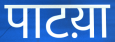
पाटय़ा